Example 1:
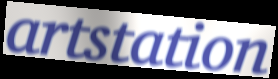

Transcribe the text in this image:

artstation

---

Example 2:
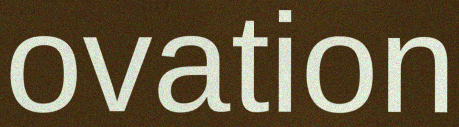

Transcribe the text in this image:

ovation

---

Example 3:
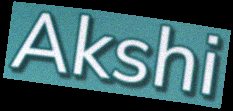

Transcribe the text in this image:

Akshi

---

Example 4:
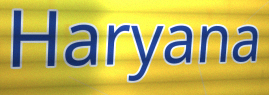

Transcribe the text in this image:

Haryana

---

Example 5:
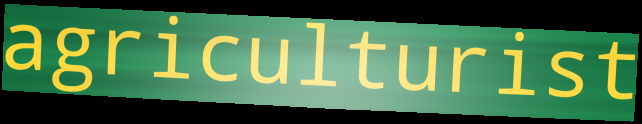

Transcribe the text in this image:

agriculturist